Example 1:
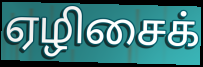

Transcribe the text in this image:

ஏழிசைக்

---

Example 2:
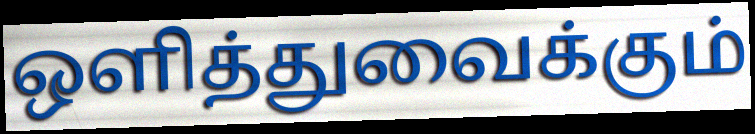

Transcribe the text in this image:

ஒளித்துவைக்கும்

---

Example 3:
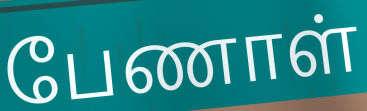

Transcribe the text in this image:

பேணாள்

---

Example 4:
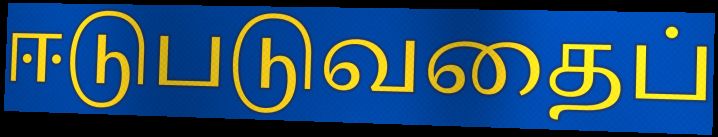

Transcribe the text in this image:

ஈடுபடுவதைப்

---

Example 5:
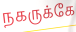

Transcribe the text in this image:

நகருக்கே